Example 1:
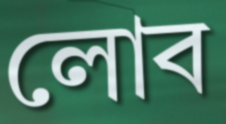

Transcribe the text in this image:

লোব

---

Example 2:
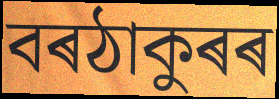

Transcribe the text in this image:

বৰঠাকুৰৰ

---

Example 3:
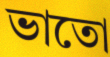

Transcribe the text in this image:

ভাতো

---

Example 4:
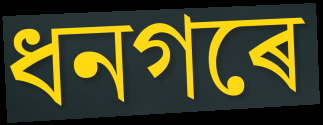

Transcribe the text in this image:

ধনগৰে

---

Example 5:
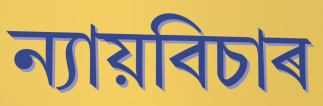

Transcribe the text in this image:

ন্যায়বিচাৰ